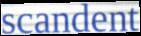
scandent